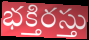
భక్తిరస్తు